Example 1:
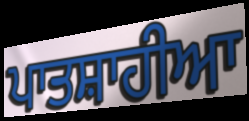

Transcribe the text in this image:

ਪਾਤਸ਼ਾਹੀਆ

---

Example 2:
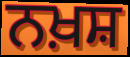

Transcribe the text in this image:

ਨਖ਼ਸ਼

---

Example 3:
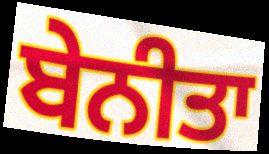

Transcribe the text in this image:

ਬੇਨੀਤਾ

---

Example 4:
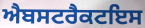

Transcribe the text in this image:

ਐਬਸਟਰੈਕਟਇਸ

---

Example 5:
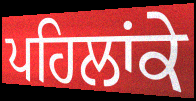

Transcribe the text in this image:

ਪਹਿਲਾਂਕੇ